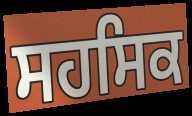
ਸਹਸਿਕ